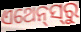
ଏଥେନ୍‌ସ୍‌ରୁ